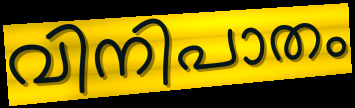
വിനിപാതം